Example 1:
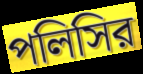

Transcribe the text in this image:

পলিসির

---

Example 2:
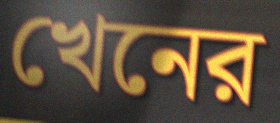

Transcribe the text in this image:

খেনের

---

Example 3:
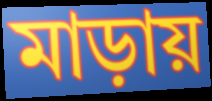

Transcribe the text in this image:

মাড়ায়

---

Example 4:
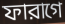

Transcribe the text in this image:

ফারাগে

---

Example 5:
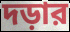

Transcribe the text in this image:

দড়ার